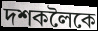
দশকলৈকে